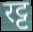
रट्ट